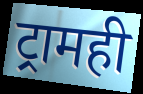
ट्रामही